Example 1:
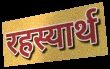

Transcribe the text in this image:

रहस्यार्थ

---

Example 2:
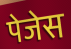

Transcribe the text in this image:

पेजेस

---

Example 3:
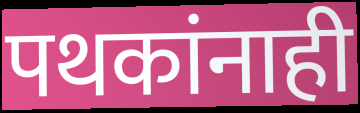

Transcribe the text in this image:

पथकांनाही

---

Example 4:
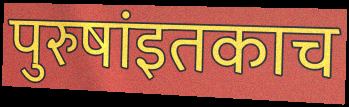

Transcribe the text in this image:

पुरुषांइतकाच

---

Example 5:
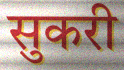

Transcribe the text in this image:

सुकरी